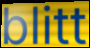
blitt